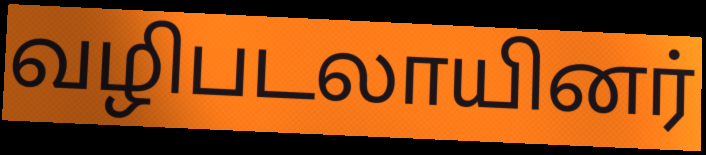
வழிபடலாயினர்